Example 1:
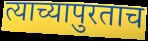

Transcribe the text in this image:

त्याच्यापुरताच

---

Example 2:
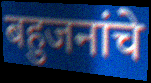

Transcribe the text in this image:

बहुजनांचे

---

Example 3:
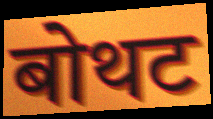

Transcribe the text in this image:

बोथट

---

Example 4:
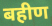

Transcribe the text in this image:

बहीण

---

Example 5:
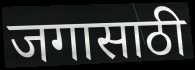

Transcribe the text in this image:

जगासाठी